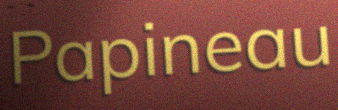
Papineau